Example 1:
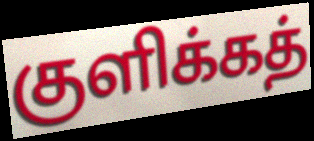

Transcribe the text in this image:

குளிக்கத்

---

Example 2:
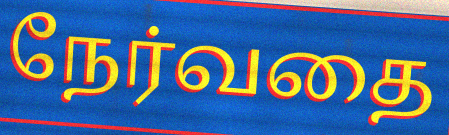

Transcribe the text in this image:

நேர்வதை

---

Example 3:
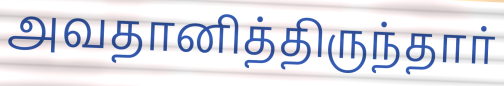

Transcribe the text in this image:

அவதானித்திருந்தார்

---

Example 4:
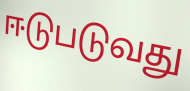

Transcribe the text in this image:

ஈடுபடுவது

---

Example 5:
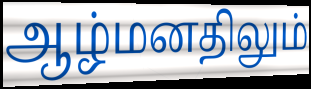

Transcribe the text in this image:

ஆழ்மனதிலும்